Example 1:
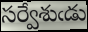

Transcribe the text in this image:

సర్వేశుఁడు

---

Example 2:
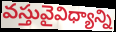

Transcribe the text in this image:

వస్తువైవిధ్యాన్ని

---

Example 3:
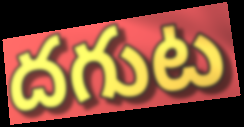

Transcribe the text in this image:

దగుట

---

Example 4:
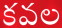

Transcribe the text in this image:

కవల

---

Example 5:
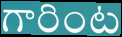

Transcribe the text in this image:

గారింట